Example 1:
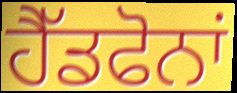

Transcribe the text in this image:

ਹੈੱਡਫੋਨਾਂ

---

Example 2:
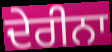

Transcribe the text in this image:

ਦੇਰੀਨਾ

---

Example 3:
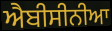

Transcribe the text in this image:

ਐਬੀਸੀਨੀਆ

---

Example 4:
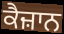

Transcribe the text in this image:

ਕੈਜ਼ਾਨ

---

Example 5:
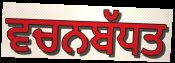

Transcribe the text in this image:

ਵਚਨਬੱਧਤ